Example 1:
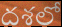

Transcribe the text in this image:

దశలో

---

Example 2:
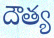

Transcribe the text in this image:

దౌత్య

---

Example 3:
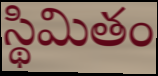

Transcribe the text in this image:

స్థిమితం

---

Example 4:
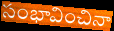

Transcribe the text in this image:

సంభావించినా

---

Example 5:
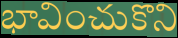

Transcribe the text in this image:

భావించుకొని